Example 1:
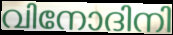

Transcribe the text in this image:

വിനോദിനി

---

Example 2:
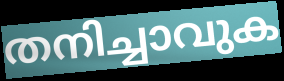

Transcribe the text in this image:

തനിച്ചാവുക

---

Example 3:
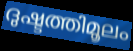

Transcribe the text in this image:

ദുഷ്ടത്തിമൂലം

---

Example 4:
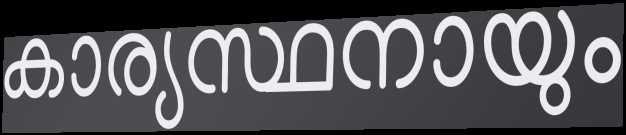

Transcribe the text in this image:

കാര്യസ്ഥനായും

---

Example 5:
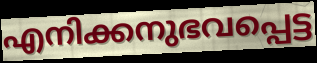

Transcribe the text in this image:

എനിക്കനുഭവപ്പെട്ട